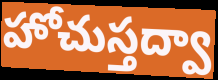
హోచుస్తద్వా